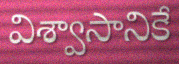
విశ్వాసానికే